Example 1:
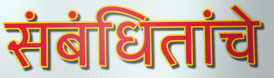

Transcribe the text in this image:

संबंधितांचे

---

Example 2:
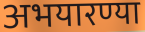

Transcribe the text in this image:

अभयारण्या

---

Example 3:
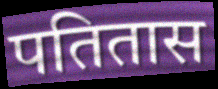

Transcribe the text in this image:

पतितास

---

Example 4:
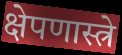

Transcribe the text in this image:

क्षेपणास्त्रे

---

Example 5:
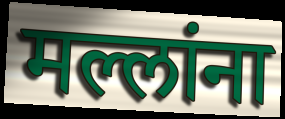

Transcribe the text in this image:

मल्लांना